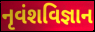
નૃવંશવિજ્ઞાન